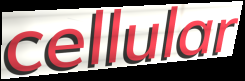
cellular